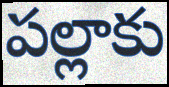
పల్లాకు